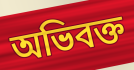
অভিবক্ত